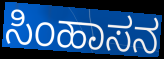
ಸಿಂಹಾಸನ